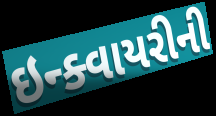
ઇન્ક્વાયરીની